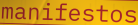
manifestos